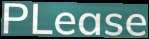
PLease